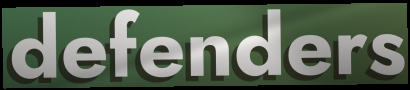
defenders